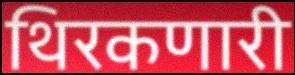
थिरकणारी